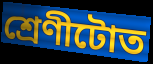
শ্ৰেণীটোত